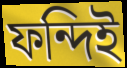
ফন্দিই